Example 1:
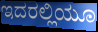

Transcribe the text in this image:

ಇದರಲ್ಲಿಯೂ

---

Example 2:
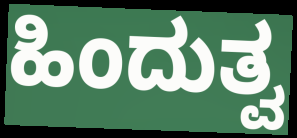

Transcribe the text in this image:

ಹಿಂದುತ್ವ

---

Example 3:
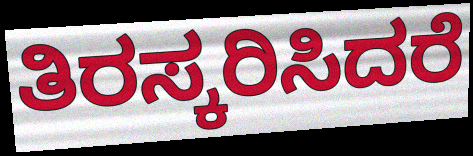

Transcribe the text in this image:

ತಿರಸ್ಕರಿಸಿದರೆ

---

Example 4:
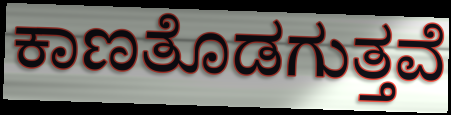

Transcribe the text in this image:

ಕಾಣತೊಡಗುತ್ತವೆ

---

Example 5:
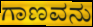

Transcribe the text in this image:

ಗಾಣವನು